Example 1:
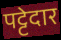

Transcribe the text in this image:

पट्टेदार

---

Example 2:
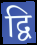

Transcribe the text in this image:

द्वि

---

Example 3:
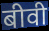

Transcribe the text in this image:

बीवी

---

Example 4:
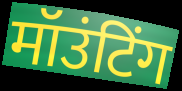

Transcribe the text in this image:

मॉउंटिंग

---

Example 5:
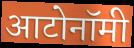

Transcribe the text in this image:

आटोनॉमी